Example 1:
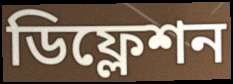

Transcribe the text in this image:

ডিফ্লেশন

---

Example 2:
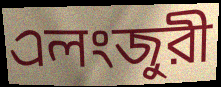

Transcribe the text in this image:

এলংজুরী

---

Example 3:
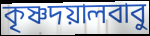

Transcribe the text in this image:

কৃষ্ণদয়ালবাবু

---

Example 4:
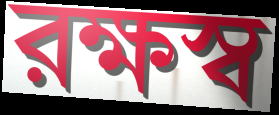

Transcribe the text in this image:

রক্ষস্ব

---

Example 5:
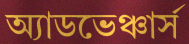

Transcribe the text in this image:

অ্যাডভেঞ্চার্স